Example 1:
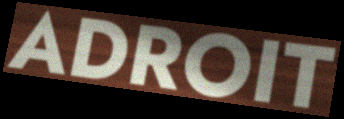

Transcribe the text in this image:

ADROIT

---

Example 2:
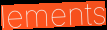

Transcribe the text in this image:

lements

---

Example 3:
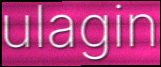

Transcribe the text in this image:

ulagin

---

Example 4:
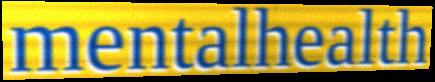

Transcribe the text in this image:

mentalhealth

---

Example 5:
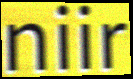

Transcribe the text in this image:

niir